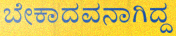
ಬೇಕಾದವನಾಗಿದ್ದ